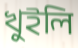
খুইলি